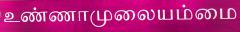
உண்ணாமுலையம்மை